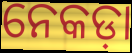
ନେକଡ଼ା